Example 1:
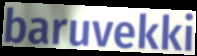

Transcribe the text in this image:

baruvekki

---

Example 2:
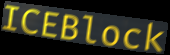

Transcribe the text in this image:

ICEBlock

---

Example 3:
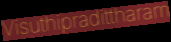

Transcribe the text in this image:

Visuthipradittharam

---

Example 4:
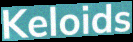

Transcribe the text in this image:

Keloids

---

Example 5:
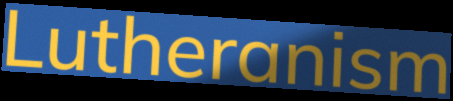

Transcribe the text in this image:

Lutheranism